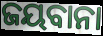
ଜୟବାନା